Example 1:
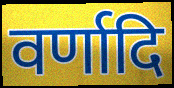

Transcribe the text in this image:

वर्णादि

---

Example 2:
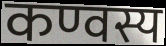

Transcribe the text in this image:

कण्वस्य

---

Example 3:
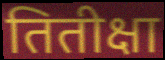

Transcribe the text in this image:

तितीक्षा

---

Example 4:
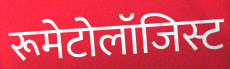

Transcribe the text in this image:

रूमेटोलॉजिस्ट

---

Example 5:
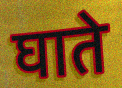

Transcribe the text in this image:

घाते